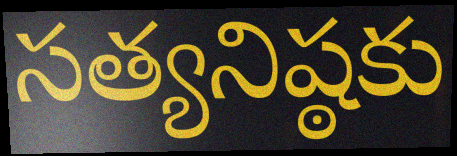
సత్యనిష్ఠకు